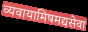
व्यवायामिषमद्यसेवा